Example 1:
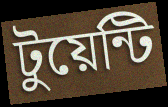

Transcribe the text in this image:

টুয়েন্টি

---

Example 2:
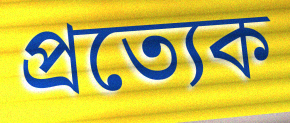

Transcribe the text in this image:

প্রত্যেক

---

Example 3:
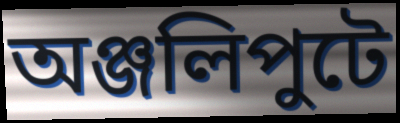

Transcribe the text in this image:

অঞ্জলিপুটে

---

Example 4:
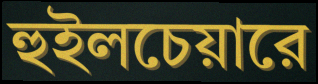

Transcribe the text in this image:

হুইলচেয়ারে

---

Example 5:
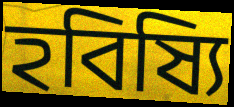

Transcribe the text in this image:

হবিষ্যি